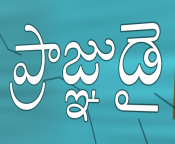
ప్రాజ్ఞుడై